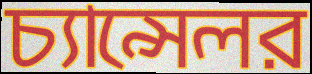
চ্যান্সেলর